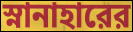
স্নানাহারের